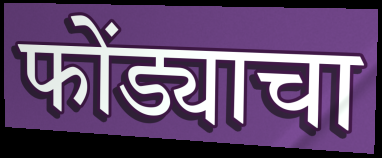
फोंड्याचा